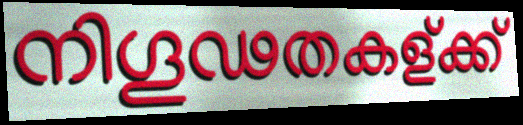
നിഗൂഢതകള്ക്ക്